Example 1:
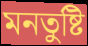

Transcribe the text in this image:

মনতুষ্টি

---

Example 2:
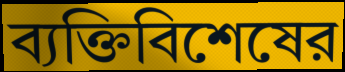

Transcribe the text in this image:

ব্যক্তিবিশেষের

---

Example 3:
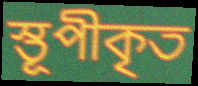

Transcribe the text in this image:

স্তূপীকৃত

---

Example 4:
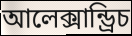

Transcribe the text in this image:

আলেক্সান্ড্রিচ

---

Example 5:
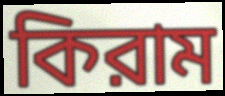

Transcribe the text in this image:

কিরাম